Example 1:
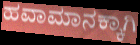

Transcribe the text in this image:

ಹವಾಮಾನಕ್ಕಾಗಿ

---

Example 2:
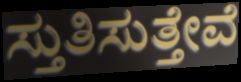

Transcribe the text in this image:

ಸ್ತುತಿಸುತ್ತೇವೆ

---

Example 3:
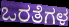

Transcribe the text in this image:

ಒರತೆಗಳ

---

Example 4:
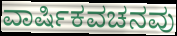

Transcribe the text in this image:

ವಾರ್ಷಿಕವಚನವು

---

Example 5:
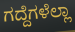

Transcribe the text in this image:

ಗದ್ದೆಗಳೆಲ್ಲಾ